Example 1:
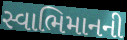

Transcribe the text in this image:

સ્વાભિમાનની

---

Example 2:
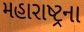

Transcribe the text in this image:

મહારાષ્ટ્રના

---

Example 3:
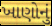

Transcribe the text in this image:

ખાણોનું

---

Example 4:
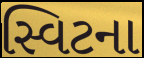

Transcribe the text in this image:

સ્વિટના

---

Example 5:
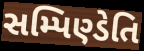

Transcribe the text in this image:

સમ્પિણ્ડેતિ